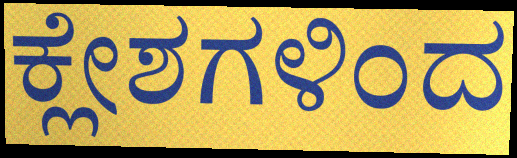
ಕ್ಲೇಶಗಳಿಂದ